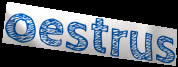
oestrus